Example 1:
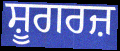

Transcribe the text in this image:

ਸ਼ੂਗਰਜ਼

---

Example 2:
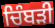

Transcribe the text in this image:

ਚਿੰਬੜੀ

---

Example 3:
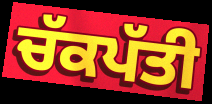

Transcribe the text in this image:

ਚੱਕਪੱਤੀ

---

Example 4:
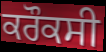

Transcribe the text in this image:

ਕਰੌਕਸੀ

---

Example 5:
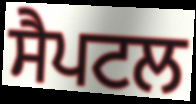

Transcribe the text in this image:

ਸੈਪਟਲ